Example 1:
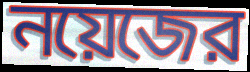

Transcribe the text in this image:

নয়েজের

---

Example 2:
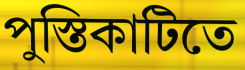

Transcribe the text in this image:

পুস্তিকাটিতে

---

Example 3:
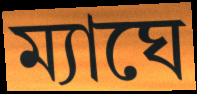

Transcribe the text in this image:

ম্যাঘে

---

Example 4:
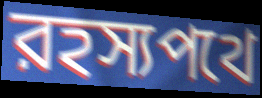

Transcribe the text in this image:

রহস্যপথে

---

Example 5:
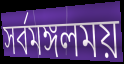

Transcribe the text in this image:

সর্বমঙ্গলময়